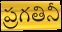
ప్రగతినీ